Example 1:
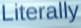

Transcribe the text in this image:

Literally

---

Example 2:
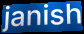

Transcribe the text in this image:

janish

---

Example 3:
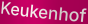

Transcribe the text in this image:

Keukenhof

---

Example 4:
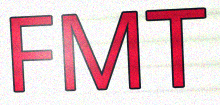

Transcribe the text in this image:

FMT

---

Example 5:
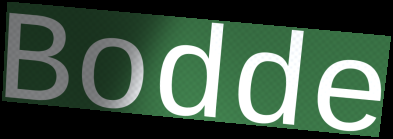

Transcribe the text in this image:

Bodde